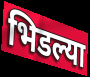
भिडल्या